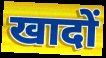
खादों